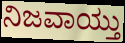
ನಿಜವಾಯ್ತು